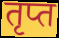
तृप्त